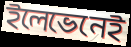
ইলেভেনেই